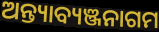
ଅନ୍ତ୍ୟାବ୍ୟଞ୍ଜନାଗମ